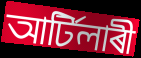
আৰ্টিলাৰী